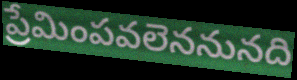
ప్రేమింపవలెననునది